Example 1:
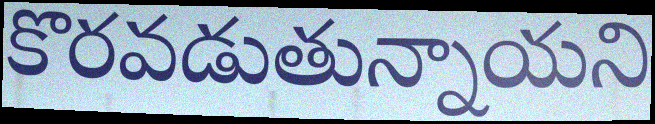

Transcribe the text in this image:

కొరవడుతున్నాయని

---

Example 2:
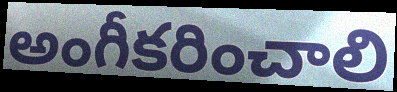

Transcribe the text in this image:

అంగీకరించాలి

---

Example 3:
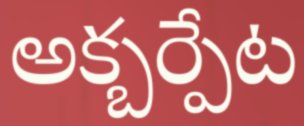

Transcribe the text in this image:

అక్బర్పేట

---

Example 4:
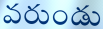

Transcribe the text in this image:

వరుండు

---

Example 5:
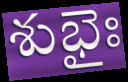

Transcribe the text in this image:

శుభైః